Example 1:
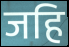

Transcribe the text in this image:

जहि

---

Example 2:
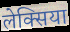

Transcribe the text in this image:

लेक्सिया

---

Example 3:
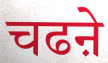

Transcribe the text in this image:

चढऩे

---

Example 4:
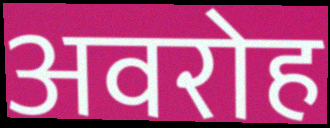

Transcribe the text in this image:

अवरोह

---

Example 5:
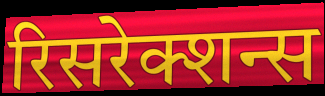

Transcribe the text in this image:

रिसरेक्शन्स